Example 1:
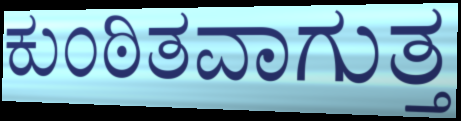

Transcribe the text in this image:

ಕುಂಠಿತವಾಗುತ್ತ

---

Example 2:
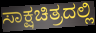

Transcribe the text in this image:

ಸಾಕ್ಷಚಿತ್ರದಲ್ಲಿ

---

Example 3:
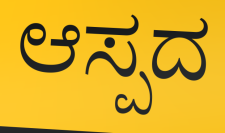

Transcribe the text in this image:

ಆಸ್ಪದ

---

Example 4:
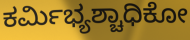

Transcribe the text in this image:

ಕರ್ಮಿಭ್ಯಶ್ಚಾಧಿಕೋ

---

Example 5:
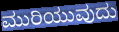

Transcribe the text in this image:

ಮುರಿಯುವುದು